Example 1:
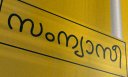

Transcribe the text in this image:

സംന്യാസീ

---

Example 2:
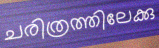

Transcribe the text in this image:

ചരിത്രത്തിലേക്കു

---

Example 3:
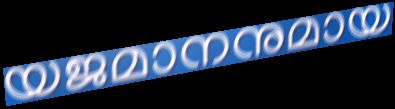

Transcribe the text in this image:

യജമാനനുമായ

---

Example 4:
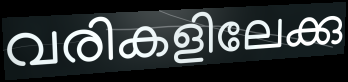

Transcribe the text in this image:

വരികളിലേക്കു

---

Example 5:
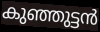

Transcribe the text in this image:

കുഞ്ഞുട്ടൻ